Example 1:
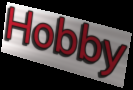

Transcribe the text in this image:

Hobby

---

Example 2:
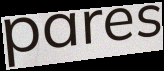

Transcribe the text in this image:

pares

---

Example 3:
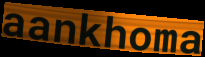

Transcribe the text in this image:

aankhoma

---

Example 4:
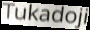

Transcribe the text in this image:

Tukadoji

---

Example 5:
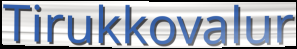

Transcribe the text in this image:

Tirukkovalur